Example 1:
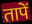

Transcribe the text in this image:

तापें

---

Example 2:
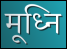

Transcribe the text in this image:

मूध्नि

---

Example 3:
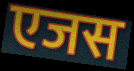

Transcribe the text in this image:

एजस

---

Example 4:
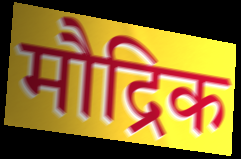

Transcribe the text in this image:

मौद्रिक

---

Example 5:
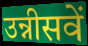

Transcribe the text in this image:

उन्नीसवें